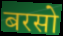
बरसो